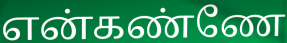
என்கண்ணே